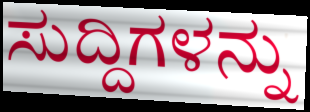
ಸುದ್ದಿಗಳನ್ನು